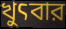
খুৎবার